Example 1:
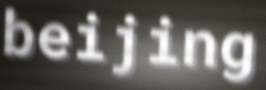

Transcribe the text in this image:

beijing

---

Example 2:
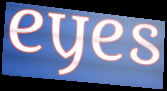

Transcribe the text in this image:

eyes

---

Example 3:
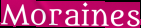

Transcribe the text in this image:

Moraines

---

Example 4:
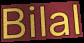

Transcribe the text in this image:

Bilal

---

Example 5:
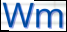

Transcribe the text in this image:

Wm